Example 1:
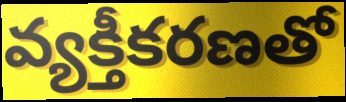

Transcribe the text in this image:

వ్యక్తీకరణతో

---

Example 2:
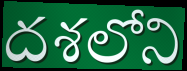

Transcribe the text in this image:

దశలోని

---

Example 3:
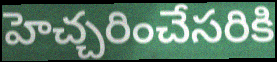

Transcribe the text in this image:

హెచ్చరించేసరికి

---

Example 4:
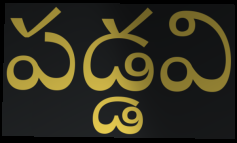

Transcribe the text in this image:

పడ్డవి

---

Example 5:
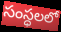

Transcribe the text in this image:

సంస్ధలలో